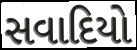
સવાદિયો